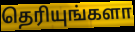
தெரியுங்களா